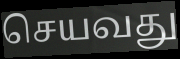
செயவது